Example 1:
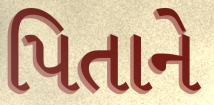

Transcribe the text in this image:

પિતાને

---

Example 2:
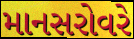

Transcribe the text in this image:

માનસરોવરે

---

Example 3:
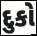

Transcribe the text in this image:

દુકો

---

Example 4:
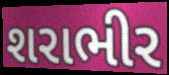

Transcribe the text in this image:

શરાભીર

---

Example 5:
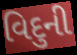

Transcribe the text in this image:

વિદુની